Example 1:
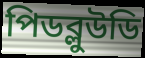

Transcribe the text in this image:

পিডব্লুউডি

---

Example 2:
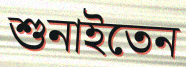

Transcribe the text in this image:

শুনাইতেন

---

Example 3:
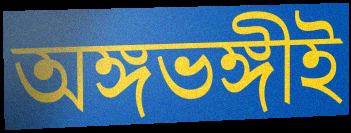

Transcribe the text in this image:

অঙ্গভঙ্গীই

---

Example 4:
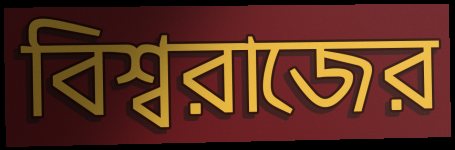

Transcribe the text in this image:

বিশ্বরাজের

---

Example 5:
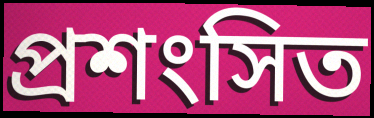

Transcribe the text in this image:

প্রশংসিত